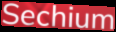
Sechium